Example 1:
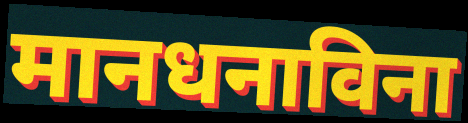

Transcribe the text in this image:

मानधनाविना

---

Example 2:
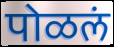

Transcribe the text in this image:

पोळलं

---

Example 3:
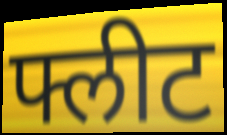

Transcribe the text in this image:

फ्लीट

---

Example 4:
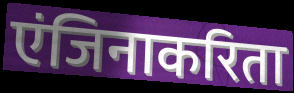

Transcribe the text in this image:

एंजिनाकरिता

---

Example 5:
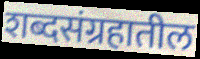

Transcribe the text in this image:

शब्दसंग्रहातील